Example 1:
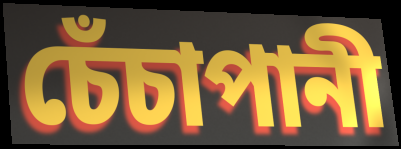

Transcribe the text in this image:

চেঁচাপানী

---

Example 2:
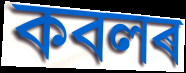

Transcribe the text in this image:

কবলৰ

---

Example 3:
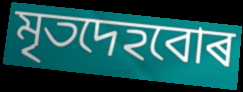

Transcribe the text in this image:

মৃতদেহবোৰ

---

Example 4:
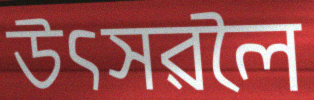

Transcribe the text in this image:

উৎসৱলৈ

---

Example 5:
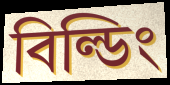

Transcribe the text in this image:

বিল্ডিং